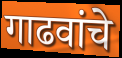
गाढवांचे